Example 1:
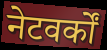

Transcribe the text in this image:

नेटवर्कों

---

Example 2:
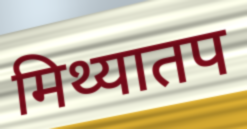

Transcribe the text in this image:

मिथ्यातप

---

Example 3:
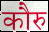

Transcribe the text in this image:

कौरु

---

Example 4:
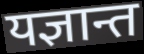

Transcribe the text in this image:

यज्ञान्त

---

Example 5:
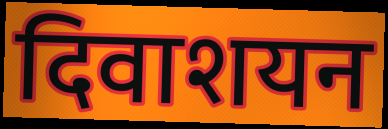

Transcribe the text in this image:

दिवाशयन